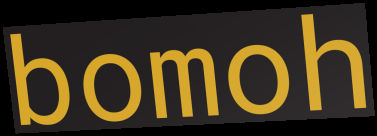
bomoh